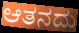
ಆತನದು